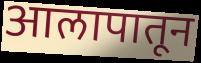
आलापातून